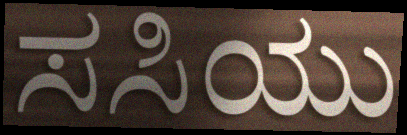
ಸಸಿಯು